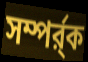
সম্পর্র্ক